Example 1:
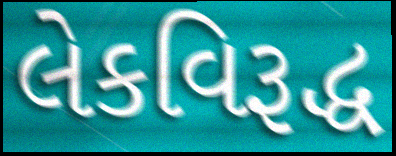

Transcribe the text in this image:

લેકવિરૂદ્ધ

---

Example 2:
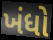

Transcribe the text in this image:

ખંધો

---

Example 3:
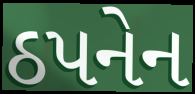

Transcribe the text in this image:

ઠપનેન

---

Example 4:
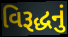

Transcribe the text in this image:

વિરૂદ્ધનું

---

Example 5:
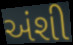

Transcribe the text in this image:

અંશી